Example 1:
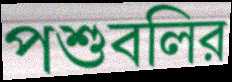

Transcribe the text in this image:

পশুবলির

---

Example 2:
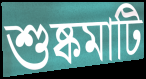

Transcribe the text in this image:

শুষ্কমাটি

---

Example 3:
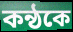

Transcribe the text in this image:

কন্ঠকে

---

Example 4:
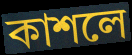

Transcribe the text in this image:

কাশলে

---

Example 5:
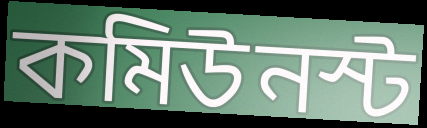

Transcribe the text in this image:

কমিউনস্ট